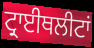
ਟ੍ਰਾਈਥਲੀਟਾਂ